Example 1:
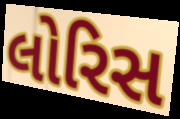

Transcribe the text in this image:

લોરિસ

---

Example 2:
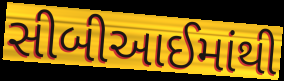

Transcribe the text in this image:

સીબીઆઈમાંથી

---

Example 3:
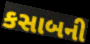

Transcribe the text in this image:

કસાબની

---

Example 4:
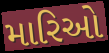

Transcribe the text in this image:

મારિઓ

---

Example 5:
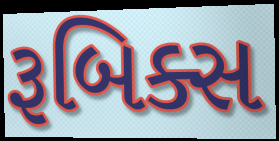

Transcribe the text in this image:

રૂબિક્સ